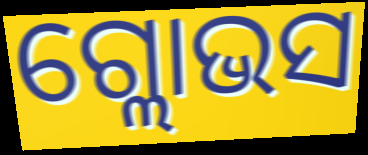
ଗ୍ଲୋଭସ